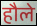
हौले